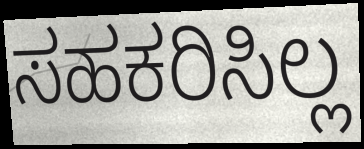
ಸಹಕರಿಸಿಲ್ಲ